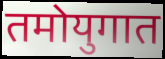
तमोयुगात